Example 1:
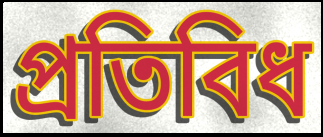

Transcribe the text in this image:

প্ৰতিবিধ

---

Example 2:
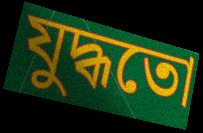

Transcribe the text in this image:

যুদ্ধতো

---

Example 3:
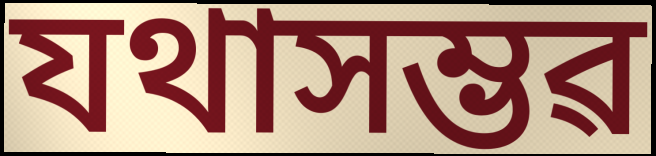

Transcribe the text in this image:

যথাসম্ভৱ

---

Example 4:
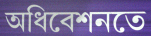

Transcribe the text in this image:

অধিবেশনতে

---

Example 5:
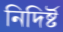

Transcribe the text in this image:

নিদিৰ্ষ্ট